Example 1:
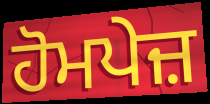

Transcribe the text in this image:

ਹੋਮਪੇਜ਼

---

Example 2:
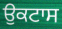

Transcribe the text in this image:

ਉਕਟਾਸ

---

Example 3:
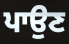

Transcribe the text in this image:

ਪਾਉਣ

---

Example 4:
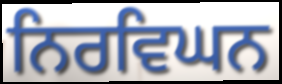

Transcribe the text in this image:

ਨਿਰਵਿਘਨ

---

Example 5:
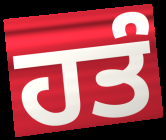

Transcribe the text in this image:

ਹਤੰ